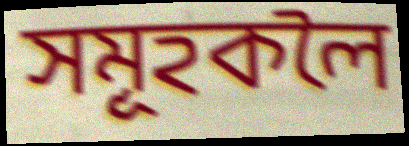
সমূহকলৈ